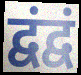
द्वंद्वं